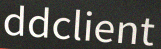
ddclient